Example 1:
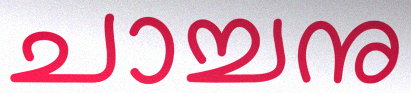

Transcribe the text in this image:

ചാച്ചനു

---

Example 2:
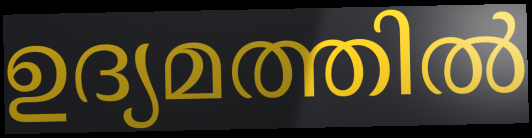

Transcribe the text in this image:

ഉദ്യമത്തിൽ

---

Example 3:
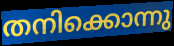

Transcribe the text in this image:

തനിക്കൊന്നു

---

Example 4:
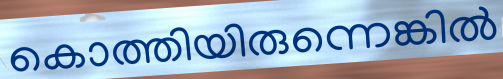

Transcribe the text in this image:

കൊത്തിയിരുന്നെങ്കിൽ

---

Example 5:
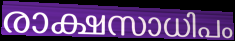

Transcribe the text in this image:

രാക്ഷസാധിപം